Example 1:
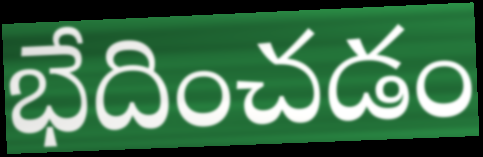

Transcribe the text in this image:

భేదించడం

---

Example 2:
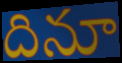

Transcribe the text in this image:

దినూ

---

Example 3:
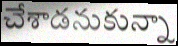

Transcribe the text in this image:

చేశాడనుకున్నా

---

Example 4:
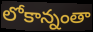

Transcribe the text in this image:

లోకాన్నంతా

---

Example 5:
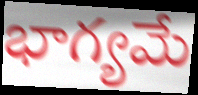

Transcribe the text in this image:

భాగ్యమే